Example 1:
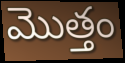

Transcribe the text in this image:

మొత్తం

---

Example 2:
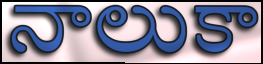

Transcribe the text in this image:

నాలుకా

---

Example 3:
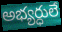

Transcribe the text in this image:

అభ్యర్ధులే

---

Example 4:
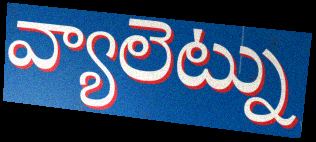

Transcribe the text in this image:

వ్యాలెట్ను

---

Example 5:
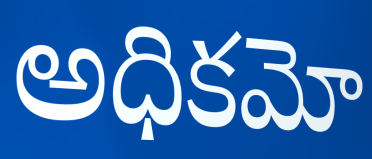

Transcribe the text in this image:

అధికమో